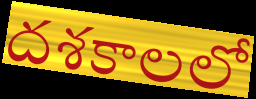
దశకాలలో